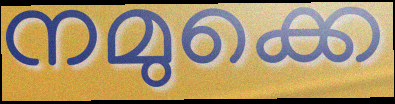
നമുക്കെ